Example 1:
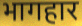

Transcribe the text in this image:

भागहार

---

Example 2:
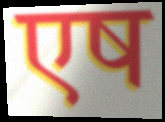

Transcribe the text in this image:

एष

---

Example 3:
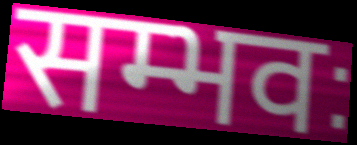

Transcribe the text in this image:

सम्भवः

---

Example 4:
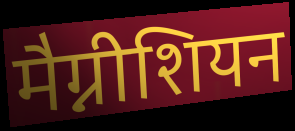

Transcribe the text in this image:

मैग्नीशियन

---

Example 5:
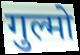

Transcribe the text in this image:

गुल्मो